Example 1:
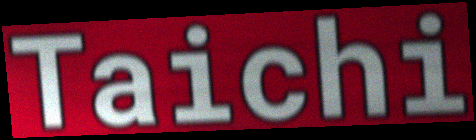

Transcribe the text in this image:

Taichi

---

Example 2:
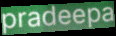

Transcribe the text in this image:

pradeepa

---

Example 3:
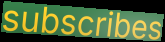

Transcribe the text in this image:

subscribes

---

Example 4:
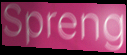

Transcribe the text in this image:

Spreng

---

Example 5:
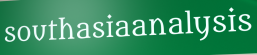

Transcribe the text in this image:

southasiaanalysis